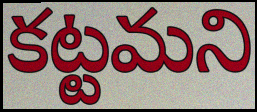
కట్టమని